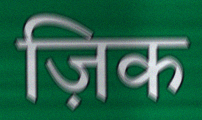
ज़िक